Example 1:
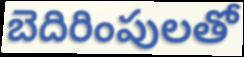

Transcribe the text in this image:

బెదిరింపులతో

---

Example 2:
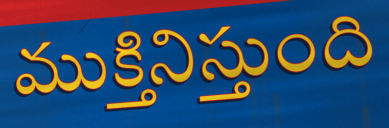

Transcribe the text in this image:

ముక్తినిస్తుంది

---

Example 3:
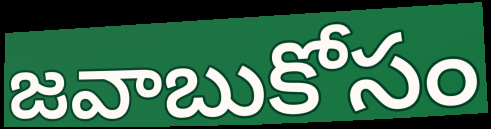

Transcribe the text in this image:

జవాబుకోసం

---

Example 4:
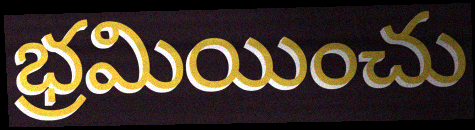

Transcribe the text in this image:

భ్రమియించు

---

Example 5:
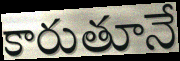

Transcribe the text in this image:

కారుతూనే